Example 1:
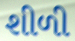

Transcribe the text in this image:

શીળી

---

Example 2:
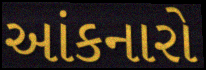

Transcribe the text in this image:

આંકનારો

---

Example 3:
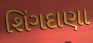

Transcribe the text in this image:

શિંગદાણા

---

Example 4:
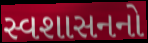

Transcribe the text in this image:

સ્વશાસનનો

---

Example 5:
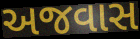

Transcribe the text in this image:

અજવાસ